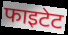
फाइटेट